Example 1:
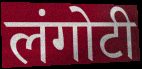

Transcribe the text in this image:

लंगोटी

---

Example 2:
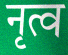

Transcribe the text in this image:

नृत्व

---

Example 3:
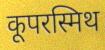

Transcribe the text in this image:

कूपरस्मिथ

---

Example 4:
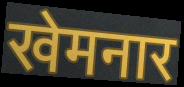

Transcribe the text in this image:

खेमनार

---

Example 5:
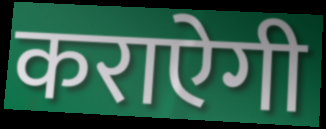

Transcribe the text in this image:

कराऐगी